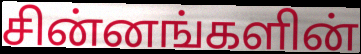
சின்னங்களின்